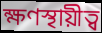
ক্ষণস্থায়ীত্ব